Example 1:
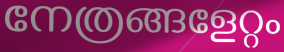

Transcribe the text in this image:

നേത്രങ്ങളേറ്റം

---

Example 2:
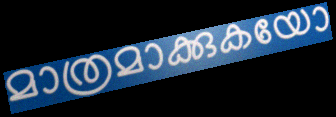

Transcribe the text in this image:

മാത്രമാക്കുകയോ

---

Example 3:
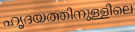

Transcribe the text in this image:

ഹൃദയത്തിനുള്ളിലെ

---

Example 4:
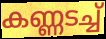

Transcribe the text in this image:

കണ്ണടച്ച്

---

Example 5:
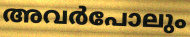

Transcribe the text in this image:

അവർപോലും